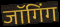
जॉगिंग